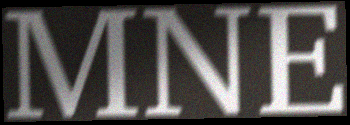
MNE